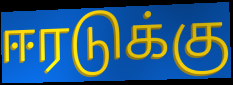
ஈரடுக்கு